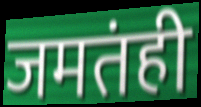
जमतंही